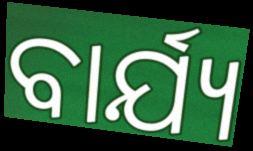
ବାର୍ଯ୍ୟ